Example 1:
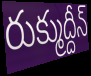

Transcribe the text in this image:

రుక్ముద్దీన్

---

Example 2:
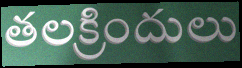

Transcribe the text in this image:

తలక్రిందులు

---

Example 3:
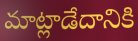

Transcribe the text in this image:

మాట్లాడేదానికి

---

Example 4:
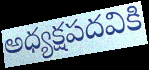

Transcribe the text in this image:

అధ్యక్షపదవికి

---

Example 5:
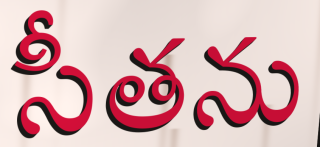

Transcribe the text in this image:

సీతను